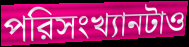
পরিসংখ্যানটাও